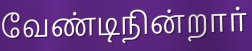
வேண்டிநின்றார்